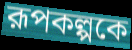
রূপকল্পকে